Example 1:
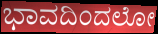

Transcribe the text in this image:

ಭಾವದಿಂದಲೋ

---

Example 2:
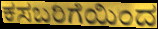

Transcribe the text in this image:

ಕಸಬರಿಗೆಯಿಂದ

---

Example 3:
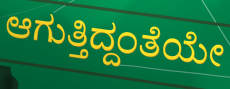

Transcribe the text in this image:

ಆಗುತ್ತಿದ್ದಂತೆಯೇ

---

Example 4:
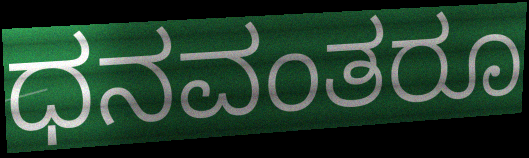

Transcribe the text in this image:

ಧನವಂತರೂ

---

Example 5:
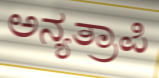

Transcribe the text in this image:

ಅನ್ಯತ್ರಾಪಿ